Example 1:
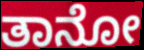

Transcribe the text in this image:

ತಾನೋ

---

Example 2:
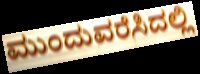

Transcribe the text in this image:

ಮುಂದುವರೆಸಿದಲ್ಲಿ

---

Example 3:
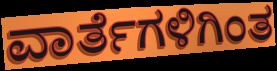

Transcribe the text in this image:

ವಾರ್ತೆಗಳಿಗಿಂತ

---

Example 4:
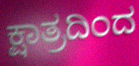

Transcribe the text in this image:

ಕ್ಷಾತ್ರದಿಂದ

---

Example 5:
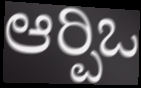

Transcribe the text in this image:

ಆರ್‍ಪಿಒ